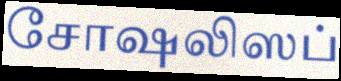
சோஷலிஸப்